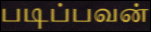
படிப்பவன்